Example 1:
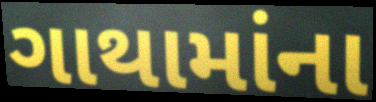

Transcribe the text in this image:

ગાથામાંના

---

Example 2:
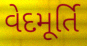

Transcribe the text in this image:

વેદમૂર્તિ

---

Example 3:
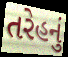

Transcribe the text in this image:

તરેહનું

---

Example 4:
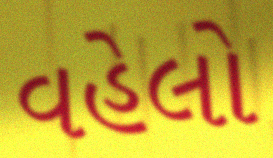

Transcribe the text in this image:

વહેલો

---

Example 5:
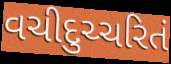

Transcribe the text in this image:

વચીદુચ્ચરિતં